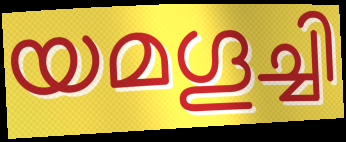
യമഗൂച്ചി